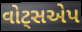
વોટ્સએપ